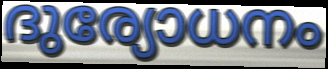
ദുര്യോധനം